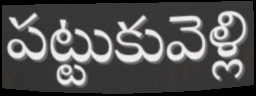
పట్టుకువెళ్లి